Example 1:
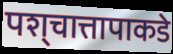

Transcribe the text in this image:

पश्चात्तापाकडे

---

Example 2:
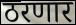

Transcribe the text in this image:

ठरणार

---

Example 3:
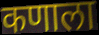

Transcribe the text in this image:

कणाला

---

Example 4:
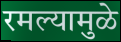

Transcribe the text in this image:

रमल्यामुळे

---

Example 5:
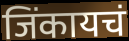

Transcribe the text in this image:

जिंकायचं